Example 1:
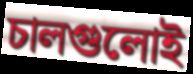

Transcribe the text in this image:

চালগুলোই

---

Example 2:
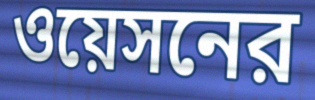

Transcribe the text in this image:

ওয়েসনের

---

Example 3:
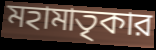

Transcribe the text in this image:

মহামাতৃকার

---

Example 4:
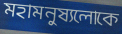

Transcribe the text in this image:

মহামনুষ্যলোকে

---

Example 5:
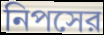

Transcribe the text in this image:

নিপসের